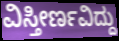
ವಿಸ್ತೀರ್ಣವಿದ್ದು